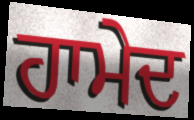
ਹਾਮੇਦ